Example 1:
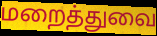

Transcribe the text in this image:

மறைத்துவை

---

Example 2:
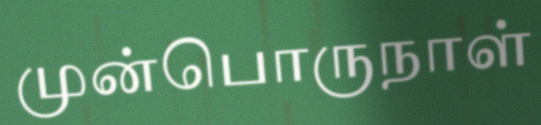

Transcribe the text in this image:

முன்பொருநாள்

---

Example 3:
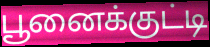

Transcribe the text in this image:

பூனைக்குட்டி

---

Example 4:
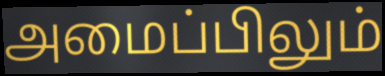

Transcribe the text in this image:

அமைப்பிலும்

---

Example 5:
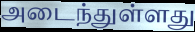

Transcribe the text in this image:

அடைந்துள்ளது